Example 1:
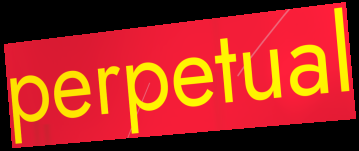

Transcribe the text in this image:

perpetual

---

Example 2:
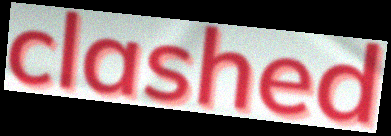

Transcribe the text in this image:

clashed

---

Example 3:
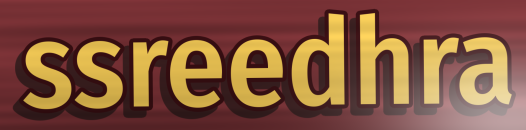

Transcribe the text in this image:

ssreedhra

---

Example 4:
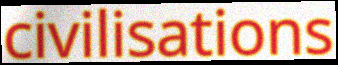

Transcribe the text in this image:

civilisations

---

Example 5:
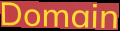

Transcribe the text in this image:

Domain